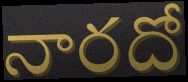
నారదో